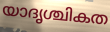
യാദൃശ്ചികത